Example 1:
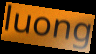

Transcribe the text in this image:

luong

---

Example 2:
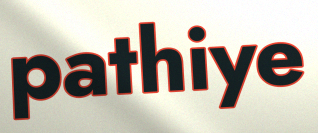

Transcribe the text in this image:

pathiye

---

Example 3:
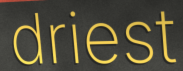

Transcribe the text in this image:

driest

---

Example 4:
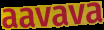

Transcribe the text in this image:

aavava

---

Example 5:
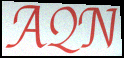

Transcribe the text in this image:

AQN